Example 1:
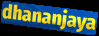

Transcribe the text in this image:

dhananjaya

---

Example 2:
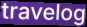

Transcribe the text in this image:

travelog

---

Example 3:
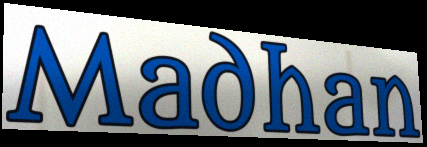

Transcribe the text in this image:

Madhan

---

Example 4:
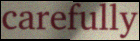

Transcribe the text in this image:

carefully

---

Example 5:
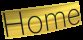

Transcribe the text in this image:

Home